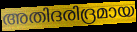
അതിദരിദ്രമായ